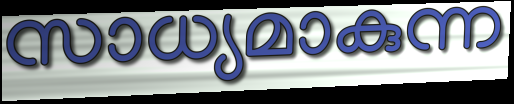
സാധ്യമാകുന്ന